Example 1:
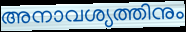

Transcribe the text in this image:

അനാവശ്യത്തിനും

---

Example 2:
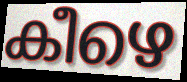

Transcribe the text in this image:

കീഴെ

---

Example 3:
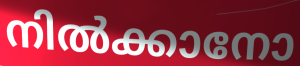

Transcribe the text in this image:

നിൽക്കാനോ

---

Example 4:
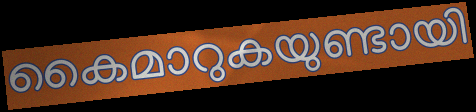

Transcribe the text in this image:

കൈമാറുകയുണ്ടായി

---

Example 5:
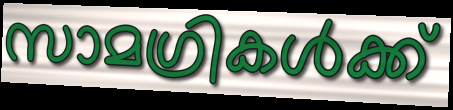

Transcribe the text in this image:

സാമഗ്രികൾക്ക്